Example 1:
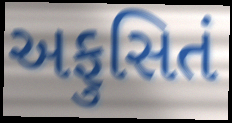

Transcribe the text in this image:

અફુસિતં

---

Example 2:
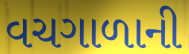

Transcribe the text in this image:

વચગાળાની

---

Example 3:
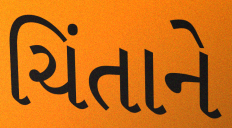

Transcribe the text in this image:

ચિંતાને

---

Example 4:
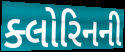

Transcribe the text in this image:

ક્લોરિનની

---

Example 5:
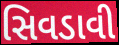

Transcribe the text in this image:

સિવડાવી